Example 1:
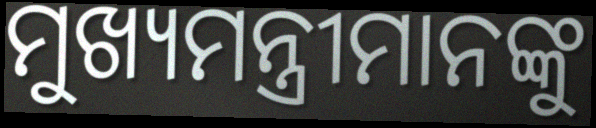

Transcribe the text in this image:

ମୁଖ୍ୟମନ୍ତ୍ରୀମାନଙ୍କୁ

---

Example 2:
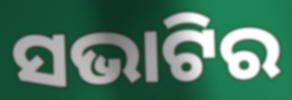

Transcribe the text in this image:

ସଭାଟିର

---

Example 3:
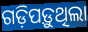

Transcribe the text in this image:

ଗଡ଼ିପଡ଼ୁଥିଲା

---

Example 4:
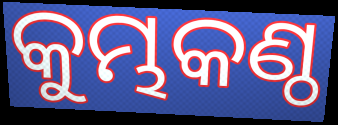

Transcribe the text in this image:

କୁମ୍ଭକଣ୍ଠ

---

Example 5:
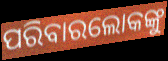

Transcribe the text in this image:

ପରିବାରଲୋକଙ୍କୁ